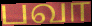
பவா